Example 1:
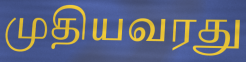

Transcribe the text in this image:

முதியவரது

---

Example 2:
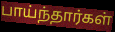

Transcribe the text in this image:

பாய்ந்தார்கள்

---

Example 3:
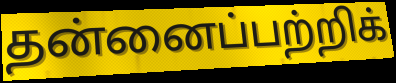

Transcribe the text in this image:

தன்னைப்பற்றிக்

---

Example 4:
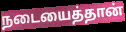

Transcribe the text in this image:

நடையைத்தான்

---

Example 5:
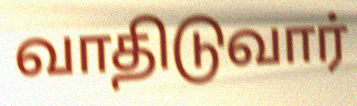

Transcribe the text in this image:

வாதிடுவார்